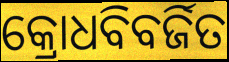
କ୍ରୋଧବିବର୍ଜିତ